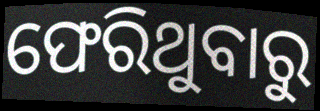
ଫେରିଥୁବାରୁ